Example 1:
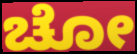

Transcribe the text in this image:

ಚೋ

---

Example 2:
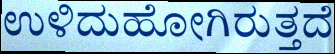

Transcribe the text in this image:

ಉಳಿದುಹೋಗಿರುತ್ತದೆ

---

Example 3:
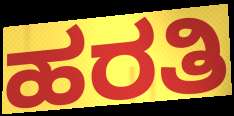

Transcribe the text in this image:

ಹರತಿ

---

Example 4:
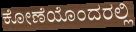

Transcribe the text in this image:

ಕೋಣೆಯೊಂದರಲ್ಲಿ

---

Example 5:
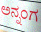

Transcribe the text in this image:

ಅನ್ನಂಗ